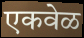
एकवेळ